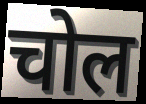
चोल